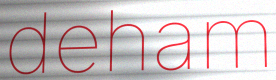
deham